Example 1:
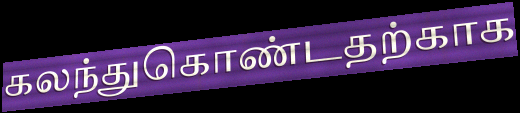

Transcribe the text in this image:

கலந்துகொண்டதற்காக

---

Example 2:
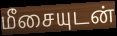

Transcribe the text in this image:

மீசையுடன்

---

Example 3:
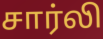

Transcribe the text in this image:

சார்லி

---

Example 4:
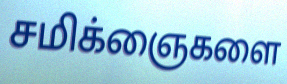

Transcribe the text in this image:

சமிக்ஞைகளை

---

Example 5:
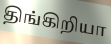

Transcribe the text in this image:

திங்கிறியா